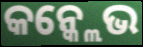
କନ୍କ୍ଲେଭ